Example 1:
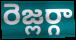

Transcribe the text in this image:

రెజ్లర్గా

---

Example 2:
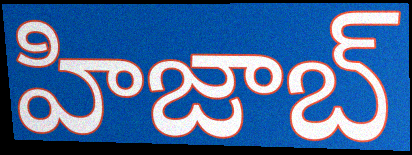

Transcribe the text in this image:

హిజాబ్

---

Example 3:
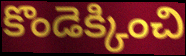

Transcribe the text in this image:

కొండెక్కించి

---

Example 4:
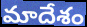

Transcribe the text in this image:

మాదేశం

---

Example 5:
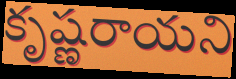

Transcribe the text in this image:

కృష్ణరాయని